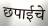
छपाईचे